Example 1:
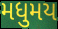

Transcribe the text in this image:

મધુમય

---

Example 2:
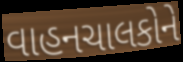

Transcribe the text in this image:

વાહનચાલકોને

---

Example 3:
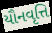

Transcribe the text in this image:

યૌનવૃત્તિ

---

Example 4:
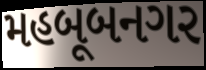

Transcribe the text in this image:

મહબૂબનગર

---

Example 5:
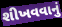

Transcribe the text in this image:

શીખવવાનું